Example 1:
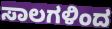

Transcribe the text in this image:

ಸಾಲಗಳಿಂದ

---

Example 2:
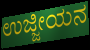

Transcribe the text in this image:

ಉಜ್ಜೀಯನ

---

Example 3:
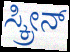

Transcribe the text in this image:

ಸ್ಕ್ರೀನ್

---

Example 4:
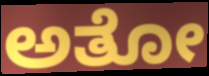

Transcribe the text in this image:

ಅತೋ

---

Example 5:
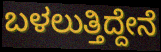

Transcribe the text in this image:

ಬಳಲುತ್ತಿದ್ದೇನೆ